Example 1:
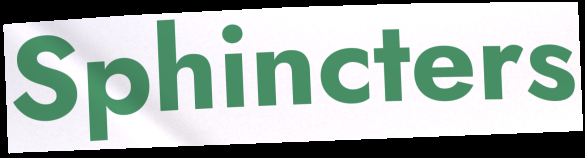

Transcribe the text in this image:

Sphincters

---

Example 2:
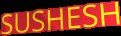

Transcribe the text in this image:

SUSHESH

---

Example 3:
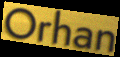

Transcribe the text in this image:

Orhan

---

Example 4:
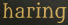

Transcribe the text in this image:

haring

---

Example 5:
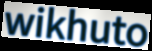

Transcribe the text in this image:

wikhuto